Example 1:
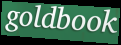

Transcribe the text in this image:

goldbook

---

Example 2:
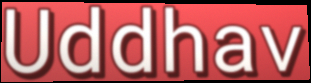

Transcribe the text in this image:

Uddhav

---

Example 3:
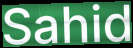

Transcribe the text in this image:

Sahid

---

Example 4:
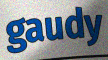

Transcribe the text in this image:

gaudy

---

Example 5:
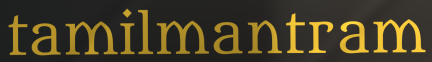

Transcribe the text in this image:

tamilmantram